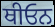
ਥੀਓਨ